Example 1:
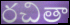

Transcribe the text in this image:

రచితా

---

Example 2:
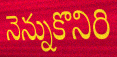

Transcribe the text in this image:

నెన్నుకొనిరి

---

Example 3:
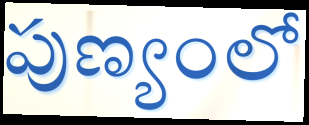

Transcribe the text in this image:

పుణ్యంలో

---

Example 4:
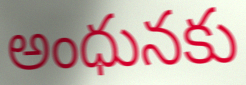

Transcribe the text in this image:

అంధునకు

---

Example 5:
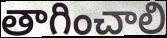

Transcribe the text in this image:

తాగించాలి